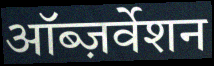
ऑब्ज़र्वेशन